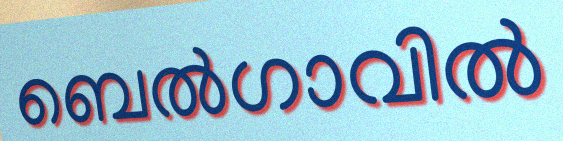
ബെൽഗാവിൽ